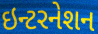
ઇન્ટરનેશન